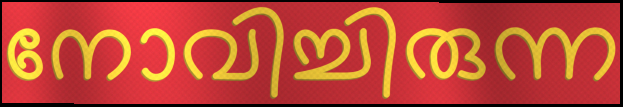
നോവിച്ചിരുന്ന